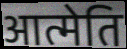
आत्मेति